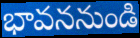
భావననుండి